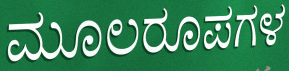
ಮೂಲರೂಪಗಳ